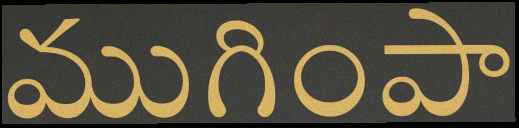
ముగింపా